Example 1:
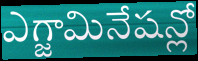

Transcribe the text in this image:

ఎగ్జామినేషన్లో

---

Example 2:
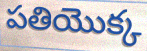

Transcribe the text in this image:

పతియొక్క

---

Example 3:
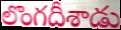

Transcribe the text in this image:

లొంగదీశాడు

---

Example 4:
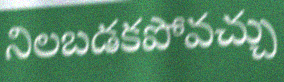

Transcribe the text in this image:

నిలబడకపోవచ్చు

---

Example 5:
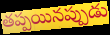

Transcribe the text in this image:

తప్పయినప్పుడు